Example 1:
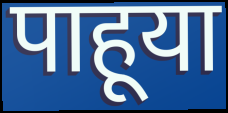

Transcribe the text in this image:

पाहूया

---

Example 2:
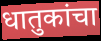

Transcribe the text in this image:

धातुकांचा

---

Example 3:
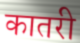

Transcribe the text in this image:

कातरी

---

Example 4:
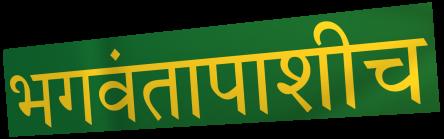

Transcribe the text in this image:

भगवंतापाशीच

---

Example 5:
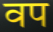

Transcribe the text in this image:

वप